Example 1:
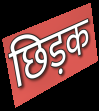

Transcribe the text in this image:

छिड़क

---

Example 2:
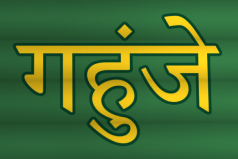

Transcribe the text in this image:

गहुंजे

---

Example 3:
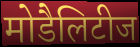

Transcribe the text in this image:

मोडैलिटीज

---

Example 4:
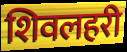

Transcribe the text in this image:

शिवलहरी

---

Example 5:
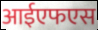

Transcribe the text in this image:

आईएफएस